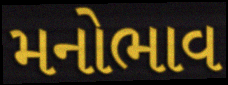
મનોભાવ